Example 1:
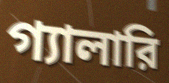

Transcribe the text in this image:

গ্যালারি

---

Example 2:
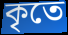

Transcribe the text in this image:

কৃতে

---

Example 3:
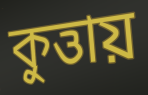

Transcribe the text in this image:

কুত্তায়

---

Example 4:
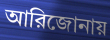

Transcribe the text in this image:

আরিজোনায়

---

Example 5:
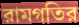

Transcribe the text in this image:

রামগতির